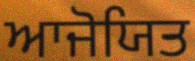
ਆਜੋਯਿਤ